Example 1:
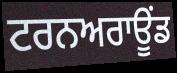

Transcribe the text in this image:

ਟਰਨਅਰਾਊਂਡ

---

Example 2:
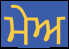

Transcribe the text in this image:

ਮੇਅ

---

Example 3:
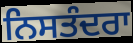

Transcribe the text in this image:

ਨਿਸਤੰਦਰਾ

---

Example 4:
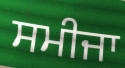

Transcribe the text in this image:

ਸਮੀਜਾ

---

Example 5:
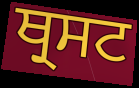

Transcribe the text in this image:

ਥ੍ਰਸਟ